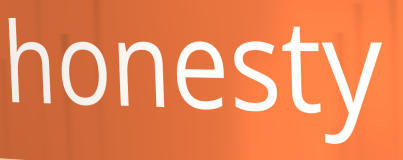
honesty